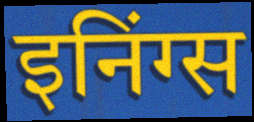
इनिंग्स